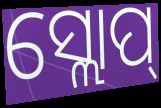
ସ୍ଲୋପ୍